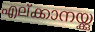
എല്ക്കാനയ്ക്കു